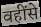
वहींसे